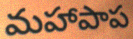
మహాపాప